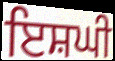
ਇਸ਼ਘੀ